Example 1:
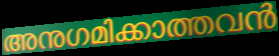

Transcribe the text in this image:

അനുഗമിക്കാത്തവൻ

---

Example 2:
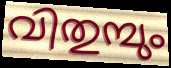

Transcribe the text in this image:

വിതുമ്പും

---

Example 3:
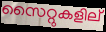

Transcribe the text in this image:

സൈറ്റുകളില്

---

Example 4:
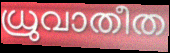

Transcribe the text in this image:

ധ്രുവാതീത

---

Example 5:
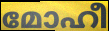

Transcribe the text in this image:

മോഹീ